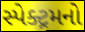
સ્પેક્ટ્રમનો